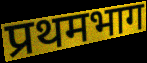
प्रथमभाग